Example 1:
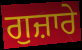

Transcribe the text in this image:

ਗੁਜ਼ਾਰੇ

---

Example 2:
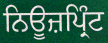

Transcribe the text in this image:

ਨਿਊਜ਼ਪ੍ਰਿੰਟ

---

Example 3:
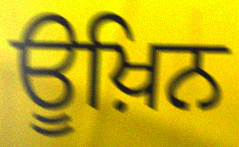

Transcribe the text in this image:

ਊਖ਼ਿਨ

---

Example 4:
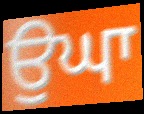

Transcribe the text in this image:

ਉਘਾ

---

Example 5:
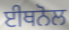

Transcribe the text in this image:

ਈਥਨੋਲ